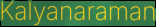
Kalyanaraman